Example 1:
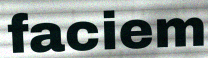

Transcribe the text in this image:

faciem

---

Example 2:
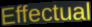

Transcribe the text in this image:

Effectual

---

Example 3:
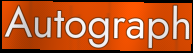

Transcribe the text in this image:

Autograph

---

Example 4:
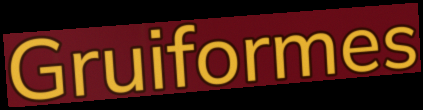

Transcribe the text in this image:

Gruiformes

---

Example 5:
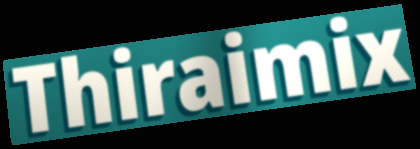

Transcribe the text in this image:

Thiraimix